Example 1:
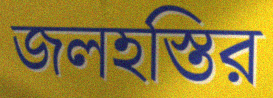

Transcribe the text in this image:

জলহস্তির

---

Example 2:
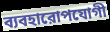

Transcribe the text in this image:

ব্যবহারোপযোগী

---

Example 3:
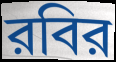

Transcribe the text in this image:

রবির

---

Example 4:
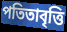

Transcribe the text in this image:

পতিতাবৃত্তি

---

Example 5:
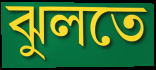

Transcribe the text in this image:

ঝুলতে